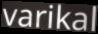
varikal